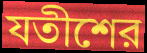
যতীশের